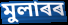
মুলাৰৰ